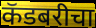
कॅडबरीचा